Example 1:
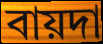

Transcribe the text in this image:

বায়দা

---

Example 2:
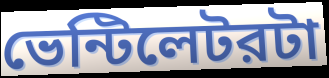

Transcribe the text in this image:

ভেন্টিলেটরটা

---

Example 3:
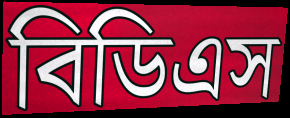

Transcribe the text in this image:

বিডিএস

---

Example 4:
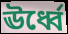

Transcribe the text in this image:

ঊর্ধ্বে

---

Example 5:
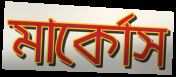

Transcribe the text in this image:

মার্কোস